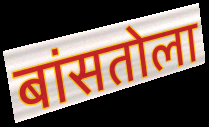
बांसतोला